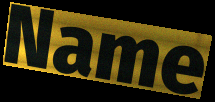
Name